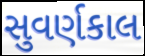
સુવર્ણકાલ